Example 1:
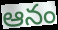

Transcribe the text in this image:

ఆనం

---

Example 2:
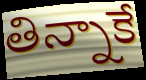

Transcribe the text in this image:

తిన్నాకే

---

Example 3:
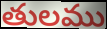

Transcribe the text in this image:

తులము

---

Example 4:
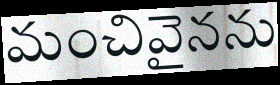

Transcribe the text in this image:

మంచివైనను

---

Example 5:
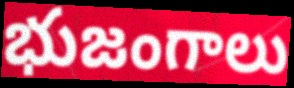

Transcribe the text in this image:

భుజంగాలు